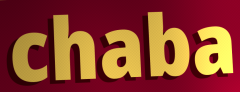
chaba